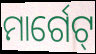
ମାର୍ଗେଟ୍